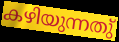
കഴിയുന്നതു്